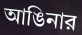
আঙিনার